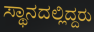
ಸ್ಥಾನದಲ್ಲಿದ್ದರು